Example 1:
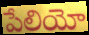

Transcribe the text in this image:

పేలియో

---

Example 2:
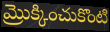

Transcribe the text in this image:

మ్రొక్కించుకొంటి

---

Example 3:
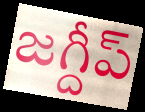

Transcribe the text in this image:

జగ్దీప్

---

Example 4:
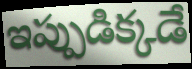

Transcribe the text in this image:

ఇప్పుడిక్కడే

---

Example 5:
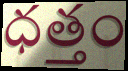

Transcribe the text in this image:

ధత్తం